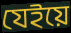
যেইয়ে